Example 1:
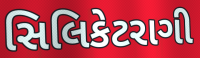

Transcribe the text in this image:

સિલિકેટરાગી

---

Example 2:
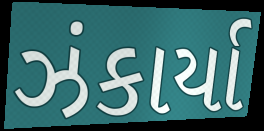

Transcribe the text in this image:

ઝંકાર્યા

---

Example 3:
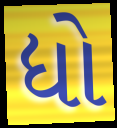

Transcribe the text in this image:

દ્યો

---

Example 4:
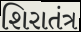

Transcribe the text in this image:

શિરાતંત્ર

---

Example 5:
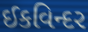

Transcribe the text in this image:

ઈકવિન્દર